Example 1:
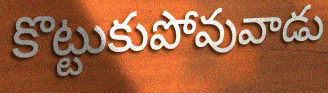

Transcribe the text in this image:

కొట్టుకుపోవువాడు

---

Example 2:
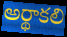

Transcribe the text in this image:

అర్థాకలి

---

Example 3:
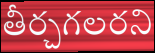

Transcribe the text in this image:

తీర్చగలరని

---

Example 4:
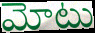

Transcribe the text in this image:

మోటు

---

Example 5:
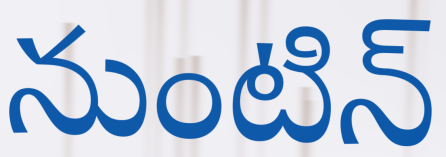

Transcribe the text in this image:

నుంటిన్